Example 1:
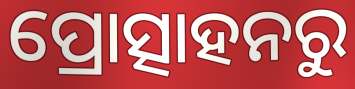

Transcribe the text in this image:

ପ୍ରୋତ୍ସାହନରୁ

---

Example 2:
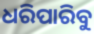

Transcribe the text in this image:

ଧରିପାରିବୁ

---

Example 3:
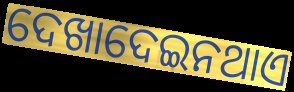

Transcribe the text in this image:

ଦେଖାଦେଇନଥାଏ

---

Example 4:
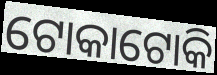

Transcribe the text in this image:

ଟୋକାଟୋକି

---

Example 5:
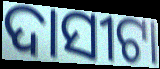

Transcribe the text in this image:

ଦାସୀଟା